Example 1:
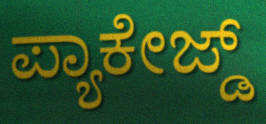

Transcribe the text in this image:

ಪ್ಯಾಕೇಜ್ಡ್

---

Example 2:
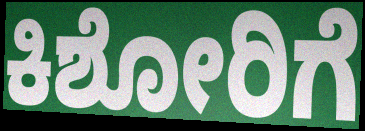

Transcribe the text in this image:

ಕಿಶೋರಿಗೆ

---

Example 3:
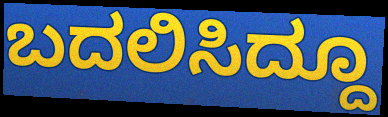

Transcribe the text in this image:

ಬದಲಿಸಿದ್ದೂ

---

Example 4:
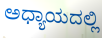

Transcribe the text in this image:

ಅಧ್ಯಾಯದಲ್ಲಿ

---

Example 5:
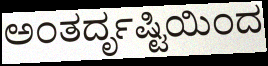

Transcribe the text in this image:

ಅಂತರ್ದೃಷ್ಟಿಯಿಂದ